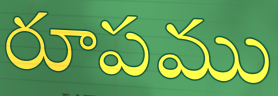
రూపము